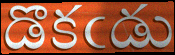
డొకఁడు